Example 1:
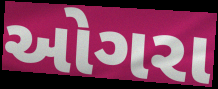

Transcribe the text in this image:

ઓગરા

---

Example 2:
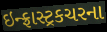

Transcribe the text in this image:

ઇન્ફ્રાસ્ટ્રકચરના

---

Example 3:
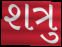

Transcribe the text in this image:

શત્રુ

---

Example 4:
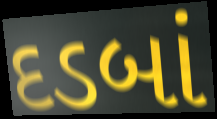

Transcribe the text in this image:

દડબાં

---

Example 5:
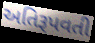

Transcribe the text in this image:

અતિરૂપવતી